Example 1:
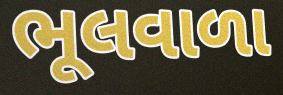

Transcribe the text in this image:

ભૂલવાળા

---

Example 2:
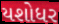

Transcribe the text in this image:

યશોધર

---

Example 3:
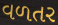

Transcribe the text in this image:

વળતર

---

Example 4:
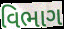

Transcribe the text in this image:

વિભાગ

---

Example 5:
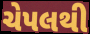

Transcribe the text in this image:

ચેપલથી